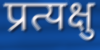
प्रत्यक्षु